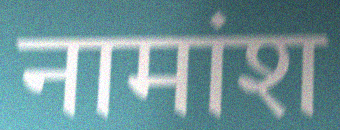
नामांश